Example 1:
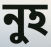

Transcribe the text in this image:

নুহ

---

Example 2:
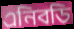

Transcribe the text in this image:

এনিবডি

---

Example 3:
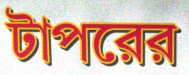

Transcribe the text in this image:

টাপরের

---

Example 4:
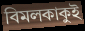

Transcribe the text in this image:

বিমলকাকুই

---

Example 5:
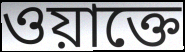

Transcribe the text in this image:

ওয়াক্তে